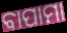
ବାପାମା